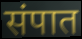
संपात